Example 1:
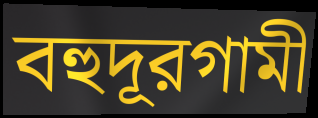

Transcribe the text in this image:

বহুদূরগামী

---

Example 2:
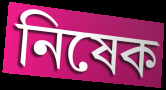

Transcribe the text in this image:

নিষেক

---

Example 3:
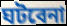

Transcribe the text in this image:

ঘটবেনা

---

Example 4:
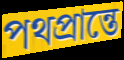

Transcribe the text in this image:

পথপ্রান্তে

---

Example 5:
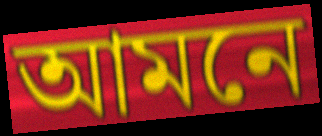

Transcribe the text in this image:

আমনে